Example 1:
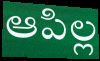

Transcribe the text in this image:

ఆపిల్ల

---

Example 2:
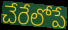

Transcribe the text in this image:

చేరేలోపే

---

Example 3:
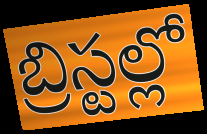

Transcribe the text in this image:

బ్రిస్టల్లో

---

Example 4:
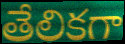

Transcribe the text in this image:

తేలికగా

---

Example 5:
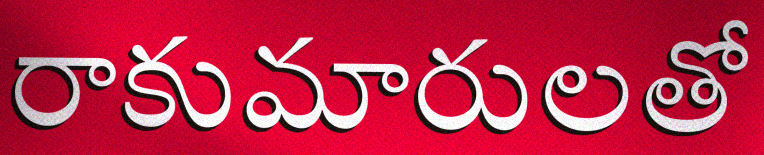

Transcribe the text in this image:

రాకుమారులతో